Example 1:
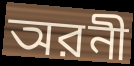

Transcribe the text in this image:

অরনী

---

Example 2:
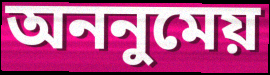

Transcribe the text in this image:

অননুমেয়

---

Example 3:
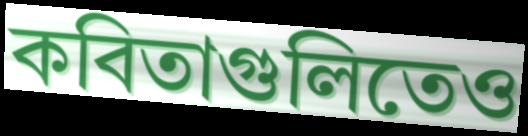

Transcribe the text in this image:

কবিতাগুলিতেও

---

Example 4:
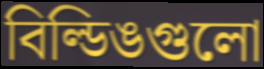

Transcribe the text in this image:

বিল্ডিঙগুলো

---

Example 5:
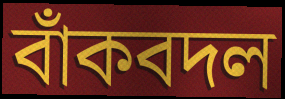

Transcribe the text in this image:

বাঁকবদল